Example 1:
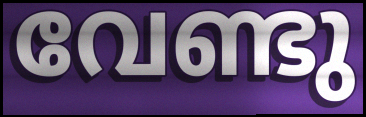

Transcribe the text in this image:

വേണ്ടു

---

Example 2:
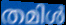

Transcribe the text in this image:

തമിൾ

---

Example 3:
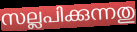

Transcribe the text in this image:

സല്ലപിക്കുന്നതു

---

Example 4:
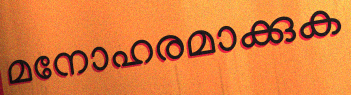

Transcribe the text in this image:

മനോഹരമാക്കുക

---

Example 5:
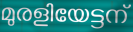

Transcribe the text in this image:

മുരളിയേട്ടന്